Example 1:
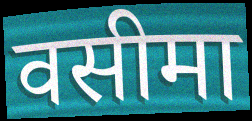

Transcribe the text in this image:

वसीमा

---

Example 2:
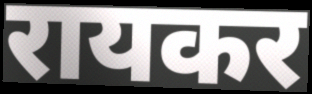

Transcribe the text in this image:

रायकर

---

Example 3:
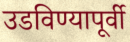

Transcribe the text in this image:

उडविण्यापूर्वी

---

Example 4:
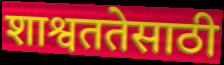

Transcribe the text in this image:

शाश्वततेसाठी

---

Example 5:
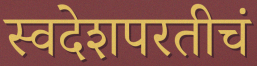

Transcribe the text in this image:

स्वदेशपरतीचं